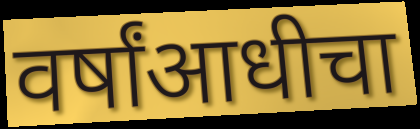
वर्षांआधीचा